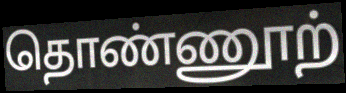
தொண்ணூற்